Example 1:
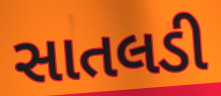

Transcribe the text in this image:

સાતલડી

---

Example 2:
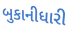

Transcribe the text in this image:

બુકાનીધારી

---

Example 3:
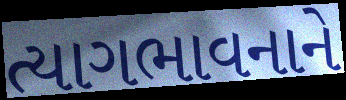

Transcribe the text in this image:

ત્યાગભાવનાને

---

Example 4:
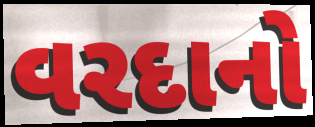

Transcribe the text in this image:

વરદાનો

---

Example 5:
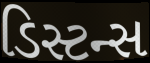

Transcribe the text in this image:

ડિસ્ટન્સ